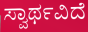
ಸ್ವಾರ್ಥವಿದೆ